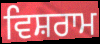
ਵਿਸ਼ਰਾਮ